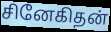
சினேகிதன்